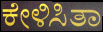
ಕೇಳಿಸಿತಾ